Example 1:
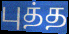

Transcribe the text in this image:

புத்த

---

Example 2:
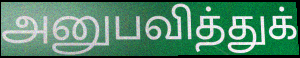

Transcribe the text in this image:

அனுபவித்துக்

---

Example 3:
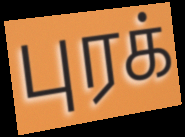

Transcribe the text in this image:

புரக்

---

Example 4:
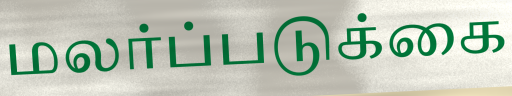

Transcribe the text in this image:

மலர்ப்படுக்கை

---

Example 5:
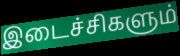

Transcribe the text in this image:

இடைச்சிகளும்